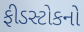
ફીડસ્ટોકનો